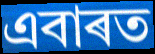
এবাৰত